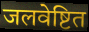
जलवेष्टित